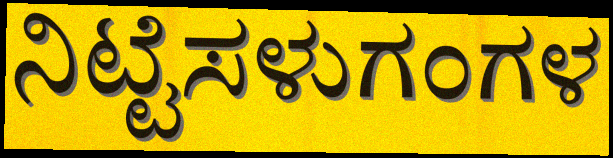
ನಿಟ್ಟೆಸಳುಗಂಗಳ